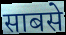
साबसे